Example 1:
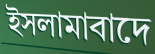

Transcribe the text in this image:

ইসলামাবাদে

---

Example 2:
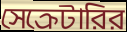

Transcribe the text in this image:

সেক্রেটারির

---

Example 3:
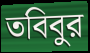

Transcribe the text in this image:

তবিবুর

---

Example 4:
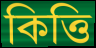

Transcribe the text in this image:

কিত্তি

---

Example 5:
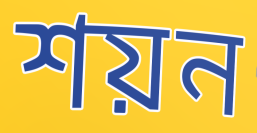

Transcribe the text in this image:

শয়ন